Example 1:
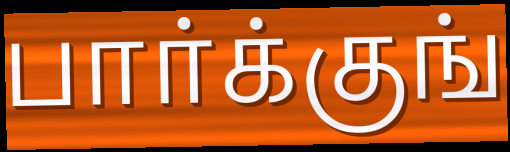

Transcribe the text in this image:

பார்க்குங்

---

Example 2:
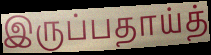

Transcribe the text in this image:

இருப்பதாய்த்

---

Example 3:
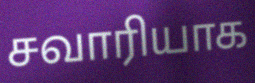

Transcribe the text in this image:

சவாரியாக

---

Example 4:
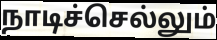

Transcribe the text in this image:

நாடிச்செல்லும்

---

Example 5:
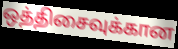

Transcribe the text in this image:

ஒத்திசைவுக்கான